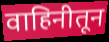
वाहिनीतून